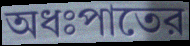
অধঃপাতের